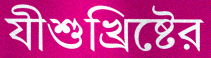
যীশুখ্রিষ্টের